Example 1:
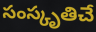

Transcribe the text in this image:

సంస్కృతిచే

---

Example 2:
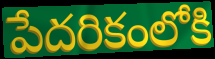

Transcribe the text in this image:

పేదరికంలోకి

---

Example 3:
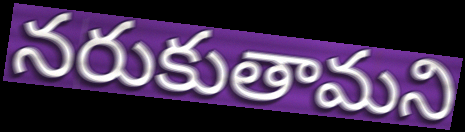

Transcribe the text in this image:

నరుకుతామని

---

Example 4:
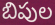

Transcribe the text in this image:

బిపుల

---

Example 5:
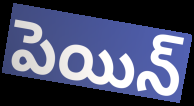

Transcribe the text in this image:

పెయిన్